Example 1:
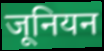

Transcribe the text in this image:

जूनियन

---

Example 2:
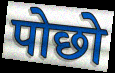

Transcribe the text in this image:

पोछो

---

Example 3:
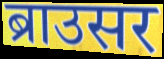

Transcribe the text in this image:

ब्राउसर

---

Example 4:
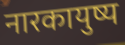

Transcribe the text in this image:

नारकायुष्य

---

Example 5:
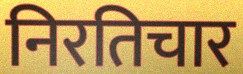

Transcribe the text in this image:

निरतिचार